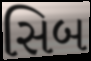
સિબ